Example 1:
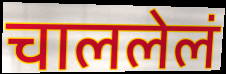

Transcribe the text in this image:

चाललेलं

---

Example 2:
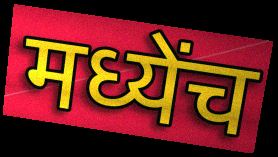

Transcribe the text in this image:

मध्येंच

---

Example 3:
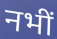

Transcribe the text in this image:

नभीं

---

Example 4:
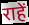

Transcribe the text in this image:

राहें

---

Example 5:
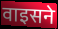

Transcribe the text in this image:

वाइसने